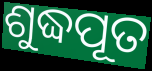
ଶୁଦ୍ଧପୂତ